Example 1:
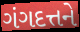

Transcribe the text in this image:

ગંગદત્તને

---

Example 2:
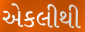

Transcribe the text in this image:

એકલીથી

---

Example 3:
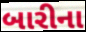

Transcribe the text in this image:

બારીના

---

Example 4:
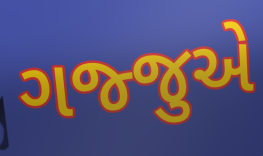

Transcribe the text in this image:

ગજ્જુએ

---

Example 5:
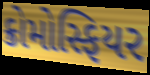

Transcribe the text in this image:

ક્રોમોસ્ફિયર